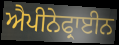
ਐਪੀਨੇਫ੍ਰਾਈਨ